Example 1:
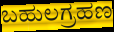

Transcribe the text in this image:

ಬಹುಲಗ್ರಹಣ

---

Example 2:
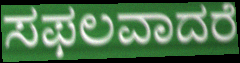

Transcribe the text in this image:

ಸಫಲವಾದರೆ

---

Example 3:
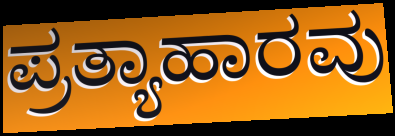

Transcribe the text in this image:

ಪ್ರತ್ಯಾಹಾರವು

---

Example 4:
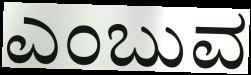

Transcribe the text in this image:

ಎಂಬುವ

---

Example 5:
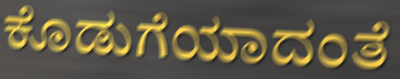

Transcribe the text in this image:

ಕೊಡುಗೆಯಾದಂತೆ